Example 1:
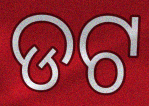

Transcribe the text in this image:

ଡଟ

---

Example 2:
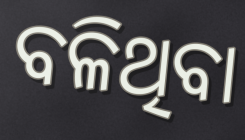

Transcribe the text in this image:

ବଳିଥିବା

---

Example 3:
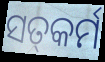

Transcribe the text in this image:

ସତ୍‍କର୍ମ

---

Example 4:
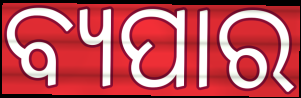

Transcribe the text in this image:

ବ୍ୟପାର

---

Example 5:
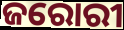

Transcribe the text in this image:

ଜରୋରୀ